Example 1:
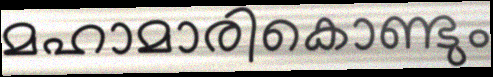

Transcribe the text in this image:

മഹാമാരികൊണ്ടും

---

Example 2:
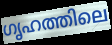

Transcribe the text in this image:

ഗൃഹത്തിലെ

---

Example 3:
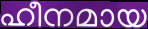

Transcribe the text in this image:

ഹീനമായ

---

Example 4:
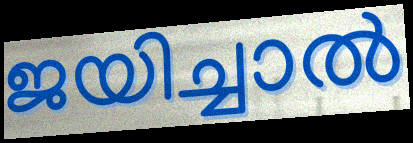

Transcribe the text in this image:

ജയിച്ചാൽ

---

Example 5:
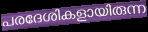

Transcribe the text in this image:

പരദേശികളായിരുന്ന